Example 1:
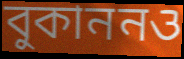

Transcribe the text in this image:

বুকাননও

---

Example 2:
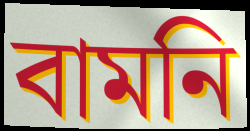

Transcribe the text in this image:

বামনি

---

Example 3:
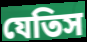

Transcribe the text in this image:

যেতিস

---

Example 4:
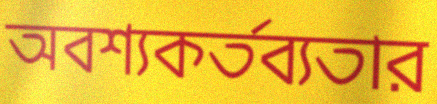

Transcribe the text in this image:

অবশ্যকর্তব্যতার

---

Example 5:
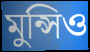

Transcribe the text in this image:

মুন্সিও